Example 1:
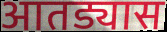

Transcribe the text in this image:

आतड्यास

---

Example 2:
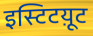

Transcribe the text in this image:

इस्टिटय़ूट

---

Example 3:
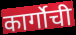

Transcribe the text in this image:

कार्गोची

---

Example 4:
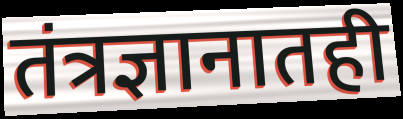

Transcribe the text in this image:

तंत्रज्ञानातही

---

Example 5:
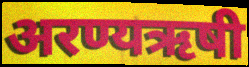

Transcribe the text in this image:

अरण्यऋषी